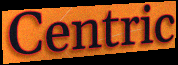
Centric